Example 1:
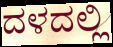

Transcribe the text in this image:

ದಳದಲ್ಲಿ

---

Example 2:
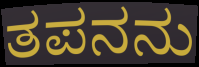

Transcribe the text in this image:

ತಪನನು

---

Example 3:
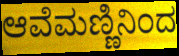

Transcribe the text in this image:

ಆವೆಮಣ್ಣಿನಿಂದ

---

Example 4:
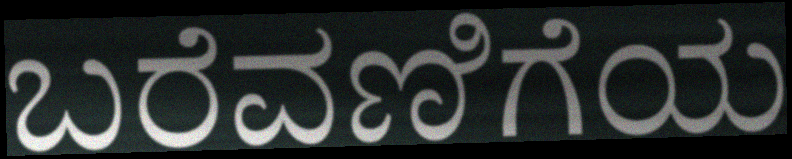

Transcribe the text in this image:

ಬರೆವಣಿಗೆಯ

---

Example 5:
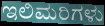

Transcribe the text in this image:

ಇಲಿಮರಿಗಳು